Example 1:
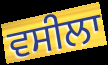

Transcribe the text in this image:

ਵਸੀਲਾ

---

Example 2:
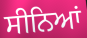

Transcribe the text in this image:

ਸੀਨਿਆਂ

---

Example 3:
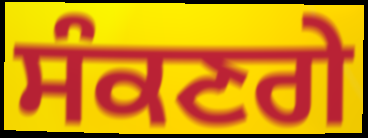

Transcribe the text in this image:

ਸੰਕਣਗੇ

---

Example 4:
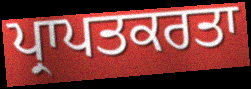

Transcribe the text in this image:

ਪ੍ਰਾਪਤਕਰਤਾ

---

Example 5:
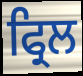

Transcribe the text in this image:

ਫ੍ਰਿਲ